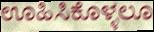
ಊಹಿಸಿಕೊಳ್ಳಲೂ